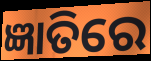
ଜ୍ଞାତିରେ